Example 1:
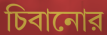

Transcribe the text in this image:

চিবানোর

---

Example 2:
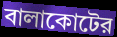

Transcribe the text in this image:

বালাকোটের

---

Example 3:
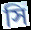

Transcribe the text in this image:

সি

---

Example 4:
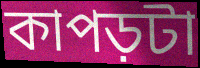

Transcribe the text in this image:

কাপড়টা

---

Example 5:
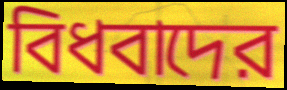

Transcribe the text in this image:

বিধবাদের